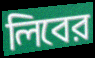
লিবের